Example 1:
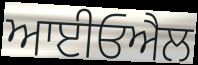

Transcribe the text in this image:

ਆਈਓਐਲ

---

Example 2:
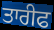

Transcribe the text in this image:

ਤਾਰੀਫ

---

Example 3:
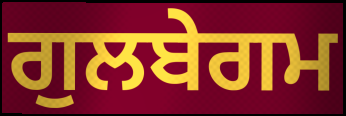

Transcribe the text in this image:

ਗੁਲਬੇਗਮ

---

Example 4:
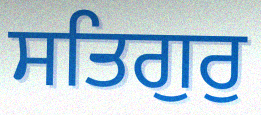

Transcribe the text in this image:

ਸਤਿਗੁਰੁ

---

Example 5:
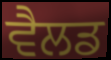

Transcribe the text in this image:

ਵੈਲਡ